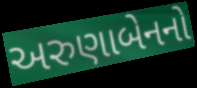
અરુણાબેનનો